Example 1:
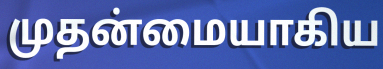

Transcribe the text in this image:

முதன்மையாகிய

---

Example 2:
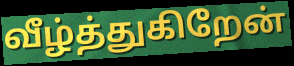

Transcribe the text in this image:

வீழ்த்துகிறேன்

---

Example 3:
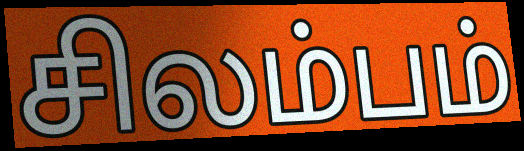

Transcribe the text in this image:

சிலம்பம்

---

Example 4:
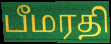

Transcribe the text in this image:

பீமரதி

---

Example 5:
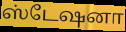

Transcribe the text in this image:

ஸ்டேஷனா